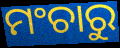
ମଂଚାରୁ